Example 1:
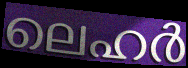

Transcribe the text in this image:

ലെഹർ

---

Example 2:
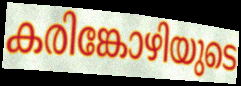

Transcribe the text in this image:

കരിങ്കോഴിയുടെ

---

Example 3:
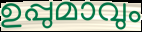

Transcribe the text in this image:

ഉപ്പുമാവും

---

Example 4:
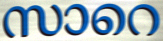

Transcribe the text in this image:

സാറെ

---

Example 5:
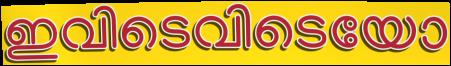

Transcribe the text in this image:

ഇവിടെവിടെയോ